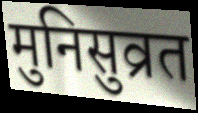
मुनिसुव्रत